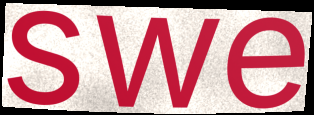
swe